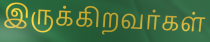
இருக்கிறவர்கள்